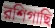
রশিগাছি